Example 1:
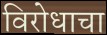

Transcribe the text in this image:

विरोधाचा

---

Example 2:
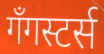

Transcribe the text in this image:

गँगस्टर्स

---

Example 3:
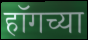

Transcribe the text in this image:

हॉगच्या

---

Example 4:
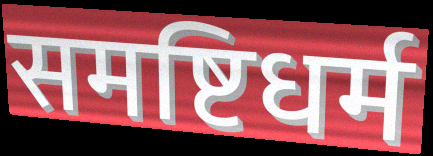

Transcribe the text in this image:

समष्टिधर्म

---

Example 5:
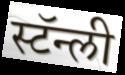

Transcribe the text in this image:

स्टॅन्ली